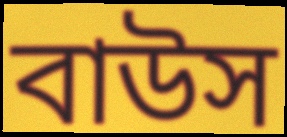
বাউস